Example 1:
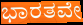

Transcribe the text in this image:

ಭಾರತವೇ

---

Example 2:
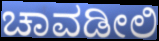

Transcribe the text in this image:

ಚಾವಡೀಲಿ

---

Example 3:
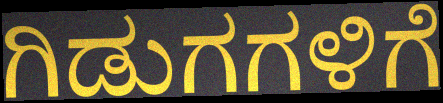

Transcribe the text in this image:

ಗಿಡುಗಗಳಿಗೆ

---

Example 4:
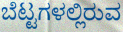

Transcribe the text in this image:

ಬೆಟ್ಟಗಳಲ್ಲಿರುವ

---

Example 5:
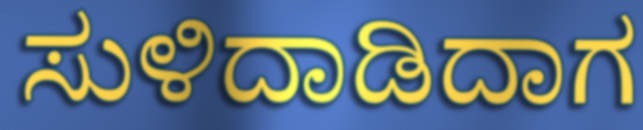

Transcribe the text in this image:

ಸುಳಿದಾಡಿದಾಗ